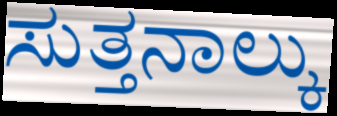
ಸುತ್ತನಾಲ್ಕು